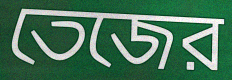
তেজের